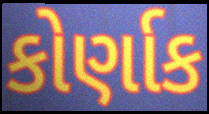
કોર્ણાક